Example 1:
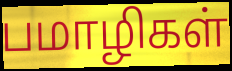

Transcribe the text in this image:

பமாழிகள்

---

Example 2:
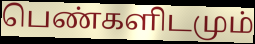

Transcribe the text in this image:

பெண்களிடமும்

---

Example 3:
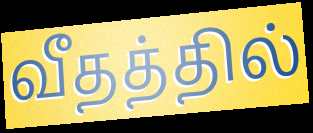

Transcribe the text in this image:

வீதத்தில்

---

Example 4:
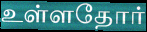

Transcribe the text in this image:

உள்ளதோர்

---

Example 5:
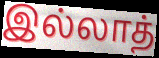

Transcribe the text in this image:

இல்லாத்